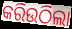
କରିଉଠିଲା